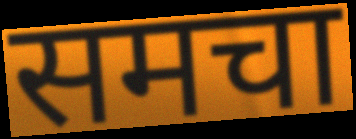
समचा